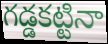
గడ్డకట్టినా